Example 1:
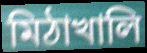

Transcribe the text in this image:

মিঠাখালি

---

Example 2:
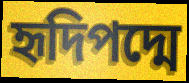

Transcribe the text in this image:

হৃদিপদ্মে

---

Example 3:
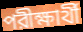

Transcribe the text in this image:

পরীক্ষার্থী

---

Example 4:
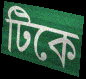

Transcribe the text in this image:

টিকে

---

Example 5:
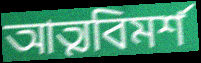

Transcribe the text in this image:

আত্মবিমর্শ